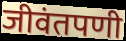
जीवंतपणी